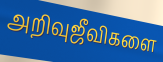
அறிவுஜீவிகளை